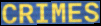
CRIMES